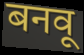
बनवू